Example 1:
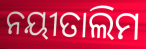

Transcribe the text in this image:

ନୟୀତାଲିମ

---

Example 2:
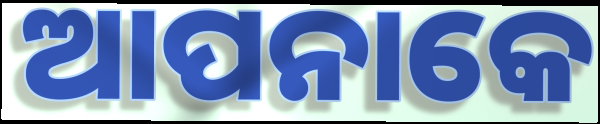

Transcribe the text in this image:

ଆପନାକେ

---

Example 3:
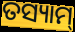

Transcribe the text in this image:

ତସ୍ୟାମ୍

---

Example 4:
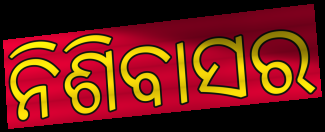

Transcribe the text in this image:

ନିଶିବାସର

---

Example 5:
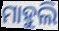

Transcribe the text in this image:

ମାହୁଲି